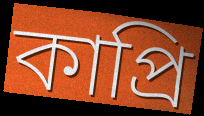
কাপ্রি